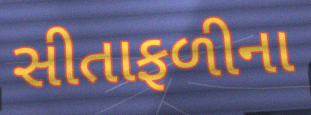
સીતાફળીના